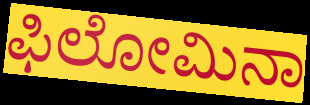
ಫಿಲೋಮಿನಾ